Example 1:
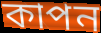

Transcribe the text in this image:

কাপন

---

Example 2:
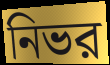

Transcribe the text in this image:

নিভর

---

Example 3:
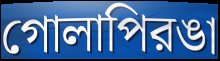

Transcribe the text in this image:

গোলাপিরঙা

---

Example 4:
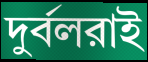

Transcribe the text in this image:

দুর্বলরাই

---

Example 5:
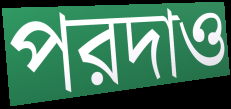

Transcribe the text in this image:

পরদাও